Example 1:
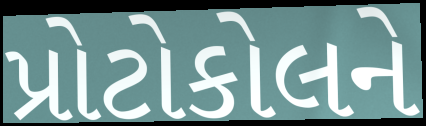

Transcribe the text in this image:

પ્રોટોકોલને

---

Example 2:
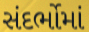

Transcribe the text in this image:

સંદર્ભોમાં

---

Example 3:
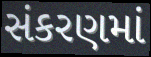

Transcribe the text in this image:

સંકરણમાં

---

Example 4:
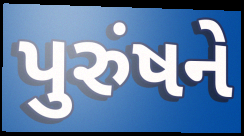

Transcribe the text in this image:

પુરુંષને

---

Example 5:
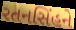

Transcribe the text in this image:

રતનસિંહને